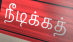
நீடிக்கத்